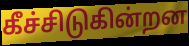
கீச்சிடுகின்றன